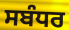
ਸਬੰਧਰ